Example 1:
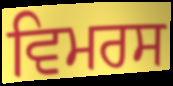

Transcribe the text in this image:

ਵਿਮਰਸ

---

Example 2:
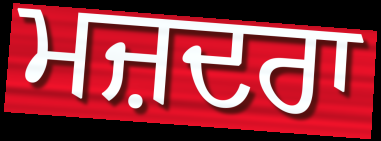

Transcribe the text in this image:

ਮਜ਼ਦਰਾ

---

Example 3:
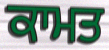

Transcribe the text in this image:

ਕਾਮਤ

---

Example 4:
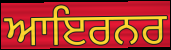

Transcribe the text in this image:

ਆਇਰਨਰ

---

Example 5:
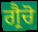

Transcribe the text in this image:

ਗ੍ਰੈਚੋ